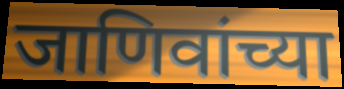
जाणिवांच्या